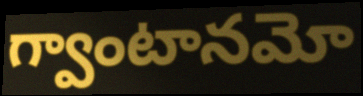
గ్వాంటానమో